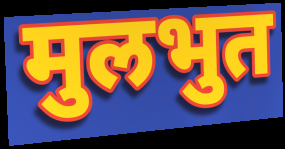
मुलभुत